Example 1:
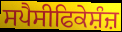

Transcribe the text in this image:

ਸਪੈਸੀਫਿਕੇਸ਼ੰਜ਼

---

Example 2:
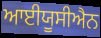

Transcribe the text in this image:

ਆਈਯੂਸੀਐਨ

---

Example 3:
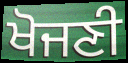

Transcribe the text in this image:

ਖੋਜਣੀ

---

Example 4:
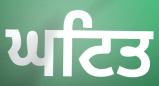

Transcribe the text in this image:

ਘਟਿਤ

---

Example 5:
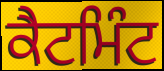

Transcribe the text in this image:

ਕੈਟਮਿੰਟ